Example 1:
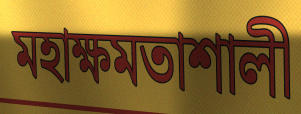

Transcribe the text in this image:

মহাক্ষমতাশালী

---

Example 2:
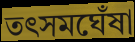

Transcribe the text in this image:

তৎসমঘেঁষা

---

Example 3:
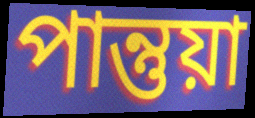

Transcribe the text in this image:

পান্তুয়া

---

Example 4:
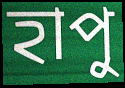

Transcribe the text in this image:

হাপু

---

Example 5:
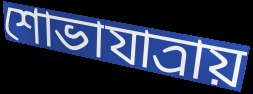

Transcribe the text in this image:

শোভাযাত্রায়